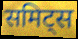
समिट्स